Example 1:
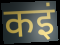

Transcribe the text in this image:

कइं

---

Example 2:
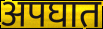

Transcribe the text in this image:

अपघात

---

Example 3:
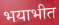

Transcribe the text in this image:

भयाभीत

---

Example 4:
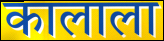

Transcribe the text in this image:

कालाला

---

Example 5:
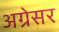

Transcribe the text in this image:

अग्रेसर